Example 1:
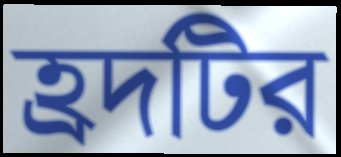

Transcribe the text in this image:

হ্রদটির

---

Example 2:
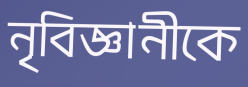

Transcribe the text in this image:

নৃবিজ্ঞানীকে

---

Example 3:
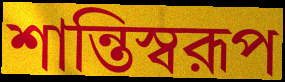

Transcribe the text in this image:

শান্তিস্বরূপ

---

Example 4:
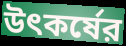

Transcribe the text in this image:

উৎকর্ষের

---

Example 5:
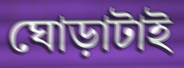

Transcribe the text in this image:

ঘোড়াটাই